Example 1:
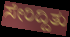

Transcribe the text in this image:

ಸೇರಿದ್ದಿತು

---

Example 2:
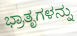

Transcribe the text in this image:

ಭ್ರಾತೃಗಳನ್ನು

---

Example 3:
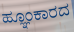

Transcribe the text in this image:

ಹ್ಞೂಂಕಾರದ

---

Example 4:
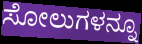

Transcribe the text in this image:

ಸೋಲುಗಳನ್ನೂ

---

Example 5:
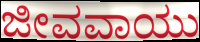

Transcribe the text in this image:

ಜೀವವಾಯು